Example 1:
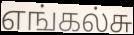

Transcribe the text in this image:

எங்கல்சு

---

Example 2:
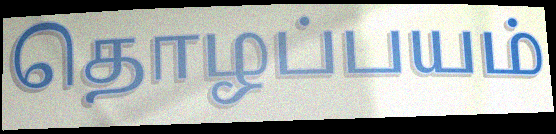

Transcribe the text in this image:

தொழப்பயம்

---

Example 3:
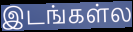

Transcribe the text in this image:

இடங்கள்ல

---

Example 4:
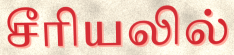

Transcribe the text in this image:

சீரியலில்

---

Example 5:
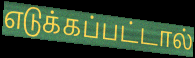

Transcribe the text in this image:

எடுக்கப்பட்டால்